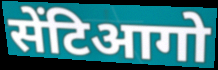
सेंटिआगो